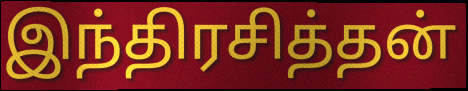
இந்திரசித்தன்